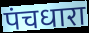
पंचधारा